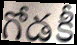
గోడకీ